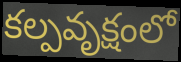
కల్పవృక్షంలో